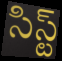
సిస్ట్